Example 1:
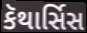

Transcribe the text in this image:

કૅથાર્સિસ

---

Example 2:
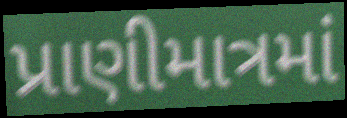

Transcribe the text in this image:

પ્રાણીમાત્રમાં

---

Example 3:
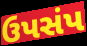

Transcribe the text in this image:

ઉપસંપ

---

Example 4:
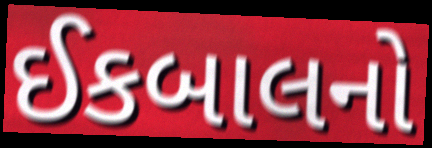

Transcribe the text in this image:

ઈકબાલનો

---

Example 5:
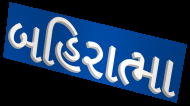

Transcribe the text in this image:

બહિરાત્મા